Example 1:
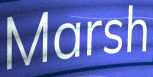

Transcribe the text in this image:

Marsh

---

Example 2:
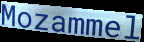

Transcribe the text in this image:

Mozammel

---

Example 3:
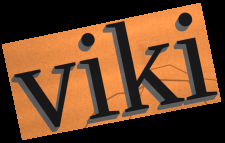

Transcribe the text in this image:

viki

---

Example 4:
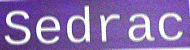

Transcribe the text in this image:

Sedrac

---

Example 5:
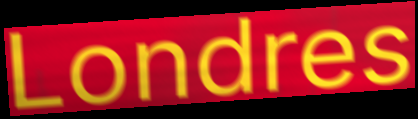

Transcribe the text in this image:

Londres